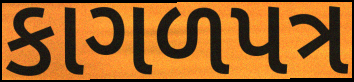
કાગળપત્ર